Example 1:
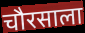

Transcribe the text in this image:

चौरसाला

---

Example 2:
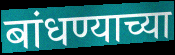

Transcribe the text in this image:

बांधण्याच्या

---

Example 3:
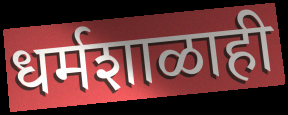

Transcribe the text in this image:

धर्मशाळाही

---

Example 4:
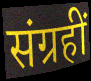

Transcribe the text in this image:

संग्रहीं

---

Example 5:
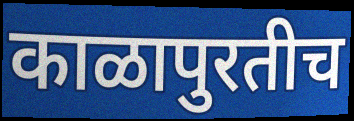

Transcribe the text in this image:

काळापुरतीच